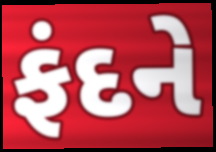
ફંદને